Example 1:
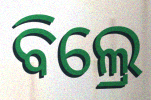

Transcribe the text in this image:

ବିଲ୍ରେ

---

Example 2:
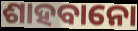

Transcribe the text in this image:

ଶାହବାନୋ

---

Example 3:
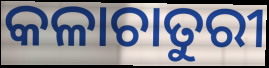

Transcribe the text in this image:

କଳାଚାତୁରୀ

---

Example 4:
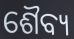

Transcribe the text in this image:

ଶୈବ୍ୟ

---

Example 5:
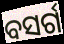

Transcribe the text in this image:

ବସର୍ଗ